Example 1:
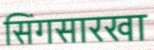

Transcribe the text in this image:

सिंगसारखा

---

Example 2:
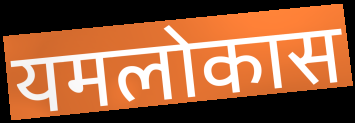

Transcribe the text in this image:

यमलोकास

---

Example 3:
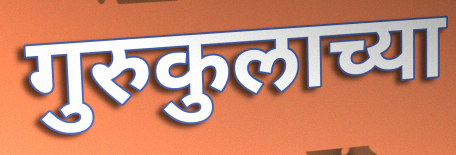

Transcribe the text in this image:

गुरुकुलाच्या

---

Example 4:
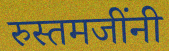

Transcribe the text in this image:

रुस्तमजींनी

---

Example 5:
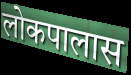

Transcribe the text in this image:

लोकपालास